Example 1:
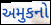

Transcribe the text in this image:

અમુકનો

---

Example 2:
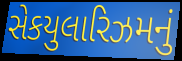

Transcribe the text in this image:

સેકયુલારિઝમનું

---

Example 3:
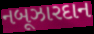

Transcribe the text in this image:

નબૂઝારદાન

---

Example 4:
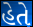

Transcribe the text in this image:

હેતે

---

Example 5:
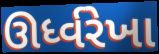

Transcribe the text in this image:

ઊર્ધ્વરેખા